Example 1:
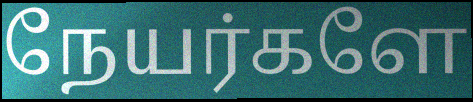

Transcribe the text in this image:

நேயர்களே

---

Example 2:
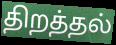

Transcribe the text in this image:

திறத்தல்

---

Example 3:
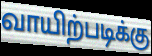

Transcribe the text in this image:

வாயிற்படிக்கு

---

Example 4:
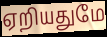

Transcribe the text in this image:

ஏறியதுமே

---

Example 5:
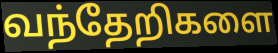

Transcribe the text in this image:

வந்தேறிகளை